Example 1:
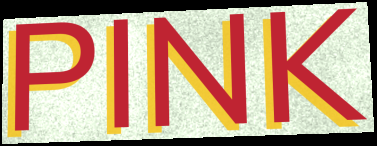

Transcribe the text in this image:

PINK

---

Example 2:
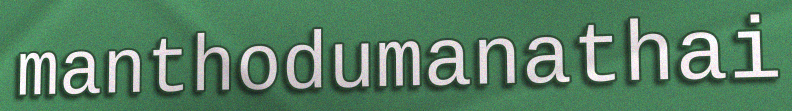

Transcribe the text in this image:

manthodumanathai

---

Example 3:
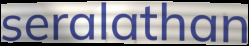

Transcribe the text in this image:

seralathan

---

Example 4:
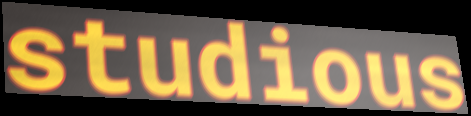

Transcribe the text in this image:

studious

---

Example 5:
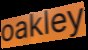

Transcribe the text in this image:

oakley